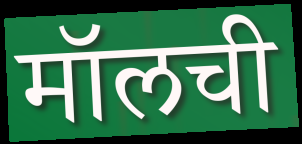
मॉलची